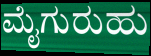
ಮೈಗುರುಹು